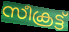
സീക്രട്ട്